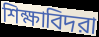
শিক্ষাবিদরা